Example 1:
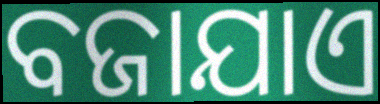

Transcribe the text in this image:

ବଜାଯାଏ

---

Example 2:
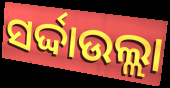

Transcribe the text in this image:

ସର୍ଦ୍ଦାଉଲ୍ଲା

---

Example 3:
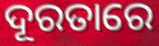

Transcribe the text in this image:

ଦୂରତାରେ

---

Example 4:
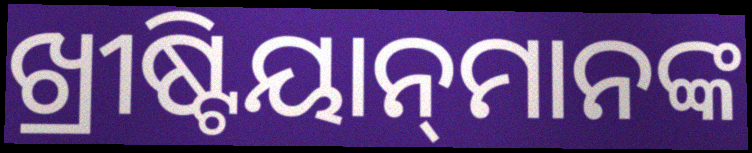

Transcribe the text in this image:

ଖ୍ରୀଷ୍ଟିୟାନ୍‌ମାନଙ୍କ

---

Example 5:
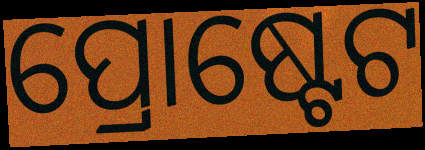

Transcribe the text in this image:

ପ୍ରୋଷ୍ଟେଟ